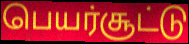
பெயர்சூட்டு